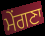
ਮੇਂਗਣਾ